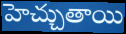
హెచ్చుతాయి